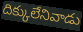
దిక్కులేనివాడు